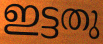
ഇട്ടതു